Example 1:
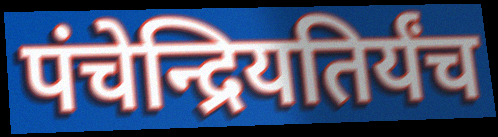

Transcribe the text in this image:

पंचेन्द्रियतिर्यंच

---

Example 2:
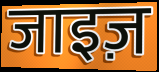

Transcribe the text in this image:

जाइज़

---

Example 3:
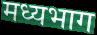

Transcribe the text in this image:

मध्यभाग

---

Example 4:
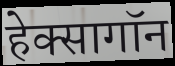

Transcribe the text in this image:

हेक्सागॉन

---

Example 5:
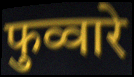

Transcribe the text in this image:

फुव्वारे